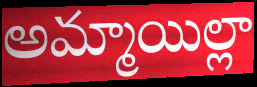
అమ్మాయిల్లా